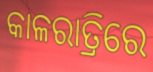
କାଳରାତ୍ରିରେ